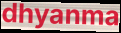
dhyanma